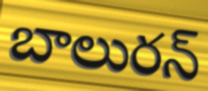
బాలురన్